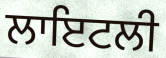
ਲਾਇਟਲੀ